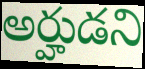
అర్హుడని